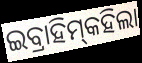
ଇବ୍ରାହିମ୍‌କହିଲା